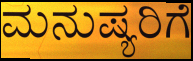
ಮನುಷ್ಯರಿಗೆ